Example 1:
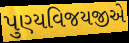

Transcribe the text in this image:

પુણ્યવિજયજીએ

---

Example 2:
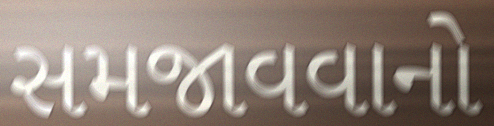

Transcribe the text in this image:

સમજાવવાનો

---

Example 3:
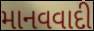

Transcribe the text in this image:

માનવવાદી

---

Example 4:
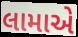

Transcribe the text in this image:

લામાએ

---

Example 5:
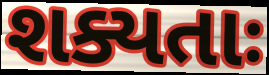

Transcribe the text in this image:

શક્યતાઃ